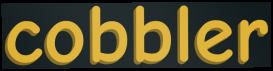
cobbler